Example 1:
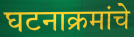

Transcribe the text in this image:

घटनाक्रमांचे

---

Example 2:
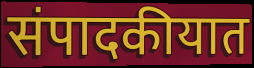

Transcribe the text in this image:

संपादकीयात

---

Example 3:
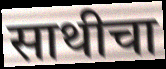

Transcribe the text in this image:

साथीचा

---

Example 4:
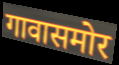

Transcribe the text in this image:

गावासमोर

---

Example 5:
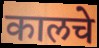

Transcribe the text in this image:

कालचे